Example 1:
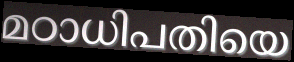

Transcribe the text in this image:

മഠാധിപതിയെ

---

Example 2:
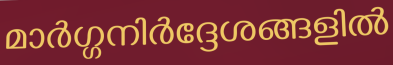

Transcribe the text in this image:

മാർഗ്ഗനിർദ്ദേശങ്ങളിൽ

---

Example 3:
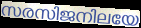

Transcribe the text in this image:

സരസിജനിലയേ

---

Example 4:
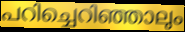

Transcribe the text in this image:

പറിച്ചെറിഞ്ഞാലും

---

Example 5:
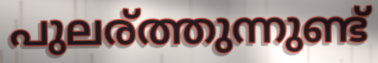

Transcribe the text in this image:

പുലര്ത്തുന്നുണ്ട്